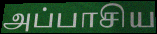
அப்பாசிய